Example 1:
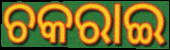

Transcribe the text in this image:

ଚକରାଇ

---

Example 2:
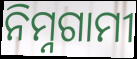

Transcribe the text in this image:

ନିମ୍ନଗାମୀ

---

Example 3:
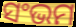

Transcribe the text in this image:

ସଂଭମ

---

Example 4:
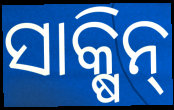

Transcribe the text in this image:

ସାକ୍ଷିନ୍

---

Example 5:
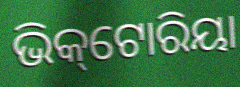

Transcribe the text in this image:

ଭିକ୍‌ଟୋରିୟା